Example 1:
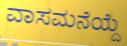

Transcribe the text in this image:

ವಾಸಮನೆಯ್ದೆ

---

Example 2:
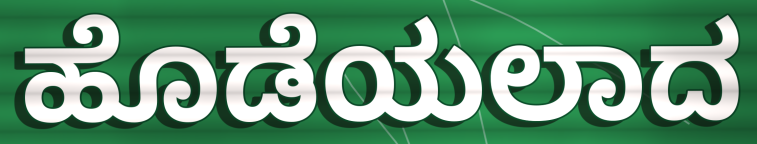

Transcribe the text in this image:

ಹೊಡೆಯಲಾದ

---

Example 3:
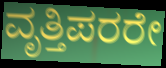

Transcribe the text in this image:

ವೃತ್ತಿಪರರೇ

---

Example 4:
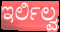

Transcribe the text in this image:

ಇರ್ಲಿಲ್ವ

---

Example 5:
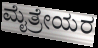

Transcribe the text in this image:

ಮೈತ್ರೇಯರ